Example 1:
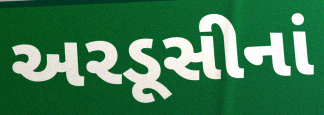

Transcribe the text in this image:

અરડૂસીનાં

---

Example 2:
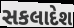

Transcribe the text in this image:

સકલાદેશ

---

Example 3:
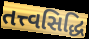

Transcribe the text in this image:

તત્ત્વસિદ્ધિ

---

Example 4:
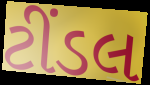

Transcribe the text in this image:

ટીંડલ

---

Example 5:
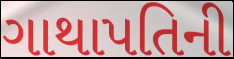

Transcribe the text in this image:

ગાથાપતિની